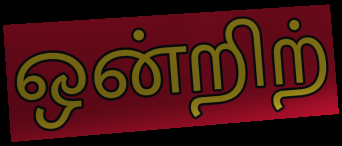
ஒன்றிற்